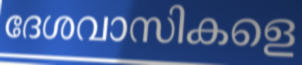
ദേശവാസികളെ